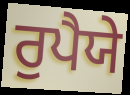
ਰੁਪੈਯੇ